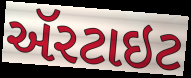
ઍરટાઇટ